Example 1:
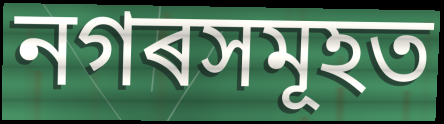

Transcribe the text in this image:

নগৰসমূহত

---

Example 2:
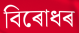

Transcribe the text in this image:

বিৰোধৰ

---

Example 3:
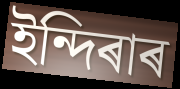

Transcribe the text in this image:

ইন্দিৰাৰ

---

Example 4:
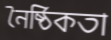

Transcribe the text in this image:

নৈষ্ঠিকতা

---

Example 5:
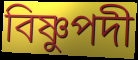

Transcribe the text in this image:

বিষ্ণুপদী